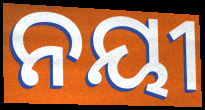
ନୟୀ